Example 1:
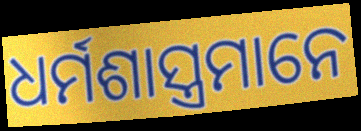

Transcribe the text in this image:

ଧର୍ମଶାସ୍ତ୍ରମାନେ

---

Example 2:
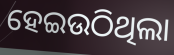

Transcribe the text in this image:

ହେଇଉଠିଥିଲା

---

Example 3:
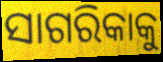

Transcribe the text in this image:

ସାଗରିକାକୁ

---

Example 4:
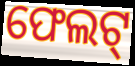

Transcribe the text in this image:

ଫେଲଟ୍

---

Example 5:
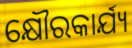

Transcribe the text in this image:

କ୍ଷୌରକାର୍ଯ୍ୟ